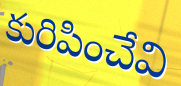
కురిపించేవి